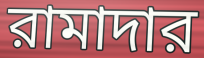
রামাদার